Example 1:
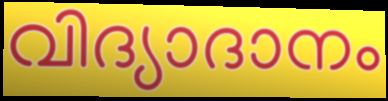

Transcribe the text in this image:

വിദ്യാദാനം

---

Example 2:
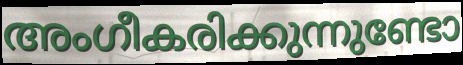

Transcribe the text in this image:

അംഗീകരിക്കുന്നുണ്ടോ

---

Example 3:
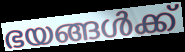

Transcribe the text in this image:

ഭയങ്ങൾക്ക്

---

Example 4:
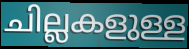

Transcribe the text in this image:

ചില്ലകളുള്ള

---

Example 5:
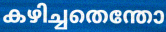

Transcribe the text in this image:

കഴിച്ചതെന്തോ